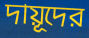
দায়ূদের